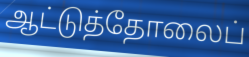
ஆட்டுத்தோலைப்